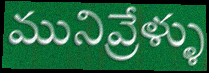
మునివ్రేళ్ళు